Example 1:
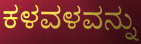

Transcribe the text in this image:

ಕಳವಳವನ್ನು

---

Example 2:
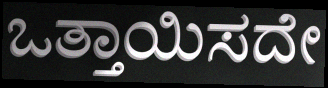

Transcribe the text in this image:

ಒತ್ತಾಯಿಸದೇ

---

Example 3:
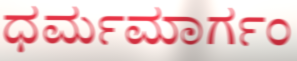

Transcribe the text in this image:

ಧರ್ಮಮಾರ್ಗಂ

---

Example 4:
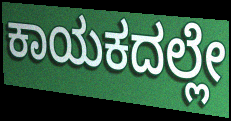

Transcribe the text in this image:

ಕಾಯಕದಲ್ಲೇ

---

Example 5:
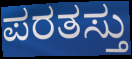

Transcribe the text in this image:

ಪರತಸ್ತು